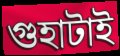
গুহাটাই